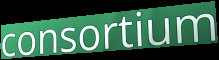
consortium